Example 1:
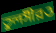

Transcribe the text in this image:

তুলসীরও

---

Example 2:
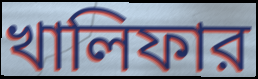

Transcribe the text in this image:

খালিফার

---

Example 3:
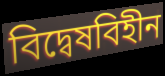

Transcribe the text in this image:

বিদ্বেষবিহীন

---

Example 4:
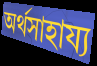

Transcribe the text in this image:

অর্থসাহায্য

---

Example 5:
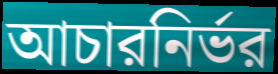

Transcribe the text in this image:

আচারনির্ভর